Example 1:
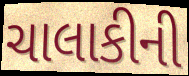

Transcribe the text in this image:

ચાલાકીની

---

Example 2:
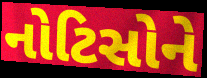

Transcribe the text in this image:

નોટિસોને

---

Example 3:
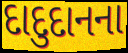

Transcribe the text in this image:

દાદુદાનના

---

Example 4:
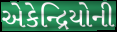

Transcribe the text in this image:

એકેન્દ્રિયોની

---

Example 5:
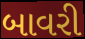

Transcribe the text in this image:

બાવરી